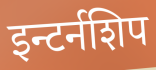
इन्टर्नशिप